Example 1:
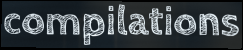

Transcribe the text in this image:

compilations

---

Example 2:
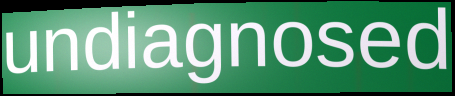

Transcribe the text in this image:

undiagnosed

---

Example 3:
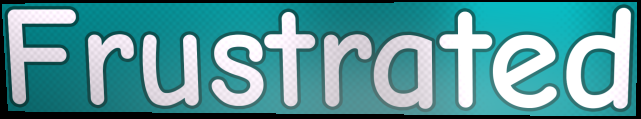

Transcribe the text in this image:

Frustrated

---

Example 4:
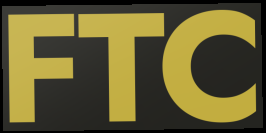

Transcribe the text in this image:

FTC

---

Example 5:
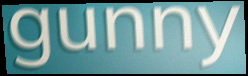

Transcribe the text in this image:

gunny